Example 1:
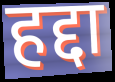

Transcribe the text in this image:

हद्दा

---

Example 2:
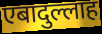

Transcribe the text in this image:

एबादुल्लाह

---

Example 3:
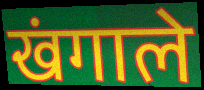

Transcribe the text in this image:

खंगाले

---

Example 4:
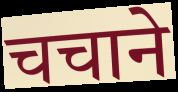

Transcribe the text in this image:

चचाने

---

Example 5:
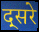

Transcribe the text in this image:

द्सरे